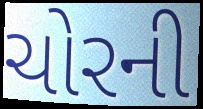
ચોરની